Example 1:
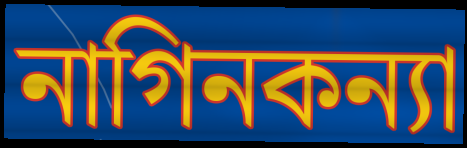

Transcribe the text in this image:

নাগিনকন্যা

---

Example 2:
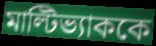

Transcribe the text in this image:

মাল্টিভ্যাককে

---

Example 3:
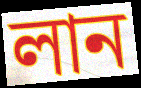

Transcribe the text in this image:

লান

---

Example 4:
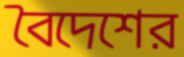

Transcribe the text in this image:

বৈদেশের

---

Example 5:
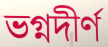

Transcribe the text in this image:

ভগ্নদীর্ণ